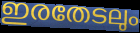
ഇരതേടലും